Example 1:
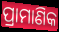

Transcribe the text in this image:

ପ୍ରାମାଣିକ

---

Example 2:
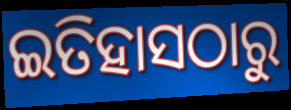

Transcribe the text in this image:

ଇତିହାସଠାରୁ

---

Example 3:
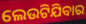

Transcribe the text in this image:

ଲେଉଟିଯିବାର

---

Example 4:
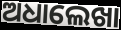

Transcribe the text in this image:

ଅଧାଲେଖା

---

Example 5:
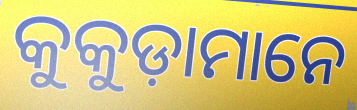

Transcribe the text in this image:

କୁକୁଡ଼ାମାନେ